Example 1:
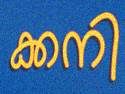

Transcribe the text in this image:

ക്കനി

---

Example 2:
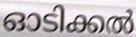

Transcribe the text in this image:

ഓടിക്കൽ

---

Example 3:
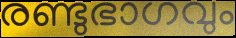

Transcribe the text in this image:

രണ്ടുഭാഗവും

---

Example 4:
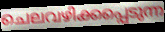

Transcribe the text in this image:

ചെലവഴിക്കപ്പെടുന്ന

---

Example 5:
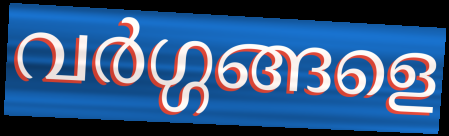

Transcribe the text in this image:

വർഗ്ഗങ്ങളെ